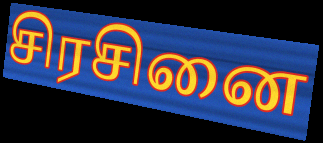
சிரசினை